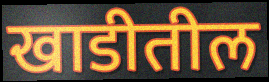
खाडीतील